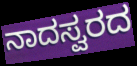
ನಾದಸ್ವರದ